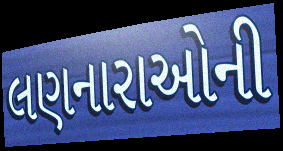
લણનારાઓની